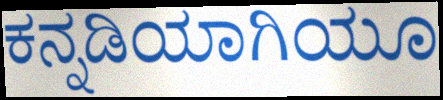
ಕನ್ನಡಿಯಾಗಿಯೂ